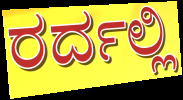
ರರ್ದಲ್ಲಿ